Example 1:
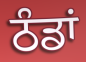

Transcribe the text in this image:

ਠੰਡਾਂ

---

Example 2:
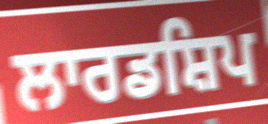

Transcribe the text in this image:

ਲਾਰਡਸ਼ਿਪ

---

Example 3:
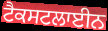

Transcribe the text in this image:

ਟੈਕਸਟਲਾਈਨ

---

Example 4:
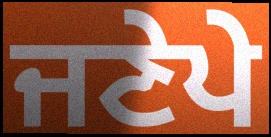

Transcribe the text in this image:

ਜਣੇਪੇ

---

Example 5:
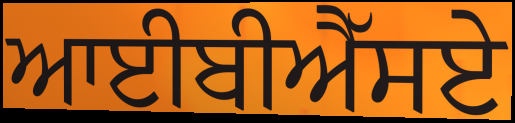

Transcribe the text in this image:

ਆਈਬੀਐੱਸਏ